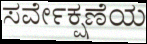
ಸರ್ವೇಕ್ಷಣೆಯ